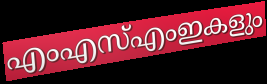
എംഎസ്എംഇകളും